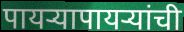
पायऱ्यापायऱ्यांची